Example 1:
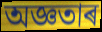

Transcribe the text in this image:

অজ্ঞতাৰ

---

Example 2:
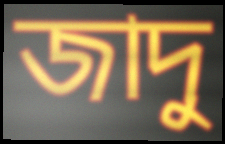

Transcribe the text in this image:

জাদু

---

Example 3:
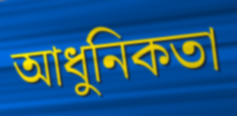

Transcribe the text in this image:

আধুনিকতা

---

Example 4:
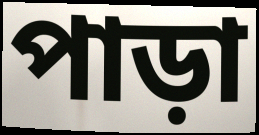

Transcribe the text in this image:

পাড়া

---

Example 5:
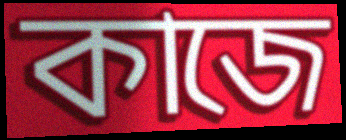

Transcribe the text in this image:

কাজে